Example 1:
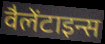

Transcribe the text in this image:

वैलेंटाइन्स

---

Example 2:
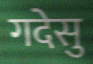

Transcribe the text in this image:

गदेसु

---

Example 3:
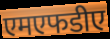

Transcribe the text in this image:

एमएफडीए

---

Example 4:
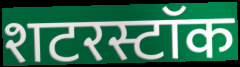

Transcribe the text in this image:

शटरस्‍टॉक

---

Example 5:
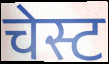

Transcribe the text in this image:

चेस्‍ट